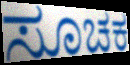
ಸೂಚಕ